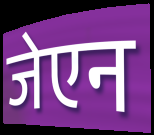
जेएन